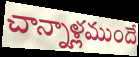
చాన్నాళ్లముందే